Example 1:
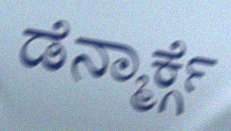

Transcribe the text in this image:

ಡೆನ್ಮಾರ್ಕ್ಗೆ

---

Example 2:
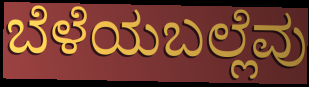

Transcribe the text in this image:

ಬೆಳೆಯಬಲ್ಲೆವು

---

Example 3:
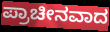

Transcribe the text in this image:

ಪ್ರಾಚೀನವಾದ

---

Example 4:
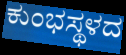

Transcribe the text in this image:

ಕುಂಭಸ್ಥಳದ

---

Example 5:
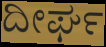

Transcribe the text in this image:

ದೀರ್ಘ